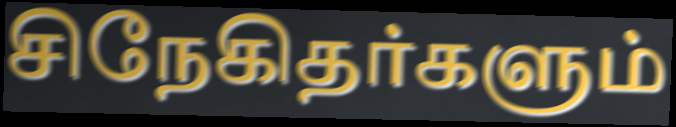
சிநேகிதர்களும்